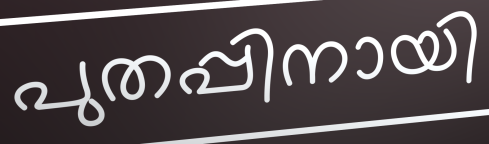
പുതപ്പിനായി